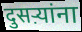
दुसऱ्‍यांना